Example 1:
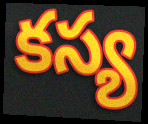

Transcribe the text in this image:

కస్య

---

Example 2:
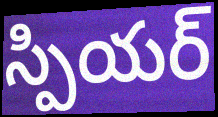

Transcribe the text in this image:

స్పియర్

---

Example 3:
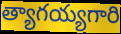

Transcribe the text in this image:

త్యాగయ్యగారి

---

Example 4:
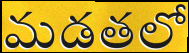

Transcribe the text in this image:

మడతలో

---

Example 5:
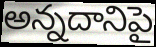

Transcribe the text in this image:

అన్నదానిపై